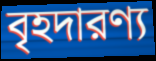
বৃহদারণ্য